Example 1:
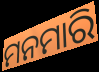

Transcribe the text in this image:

ମନମାରି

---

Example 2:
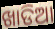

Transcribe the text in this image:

ଖାଡିଆ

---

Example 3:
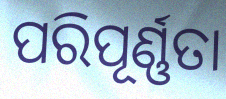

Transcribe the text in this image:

ପରିପୂର୍ଣ୍ଣତା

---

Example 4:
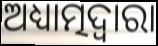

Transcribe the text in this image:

ଅଧ୍ୟାତ୍ମଦ୍ୱାରା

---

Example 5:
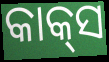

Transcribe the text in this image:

କାକ୍‌ସ